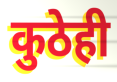
कुठेही